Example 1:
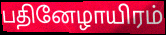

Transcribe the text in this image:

பதினேழாயிரம்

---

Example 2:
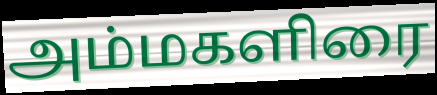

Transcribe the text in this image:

அம்மகளிரை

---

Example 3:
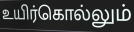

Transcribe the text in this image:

உயிர்கொல்லும்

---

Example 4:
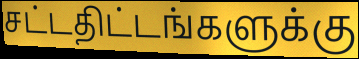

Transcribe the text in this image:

சட்டதிட்டங்களுக்கு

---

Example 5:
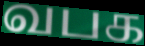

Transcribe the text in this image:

வபக